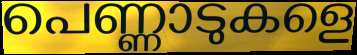
പെണ്ണാടുകളെ